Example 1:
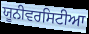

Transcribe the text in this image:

ਯੂਨੀਵਰਸਿਟੀਆ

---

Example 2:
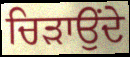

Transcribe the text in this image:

ਚਿੜਾਉਂਦੇ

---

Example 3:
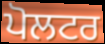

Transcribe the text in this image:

ਪੋਲਟਰ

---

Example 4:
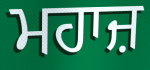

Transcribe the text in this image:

ਮਹਾਜ਼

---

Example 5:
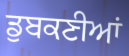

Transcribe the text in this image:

ਡੁਬਕਣੀਆਂ